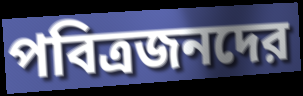
পবিত্রজনদের